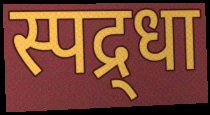
स्पद्र्धा